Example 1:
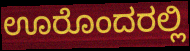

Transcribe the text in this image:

ಊರೊಂದರಲ್ಲಿ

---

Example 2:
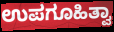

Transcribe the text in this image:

ಉಪಗೂಹಿತ್ವಾ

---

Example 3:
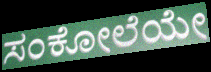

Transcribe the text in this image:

ಸಂಕೋಲೆಯೇ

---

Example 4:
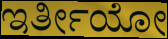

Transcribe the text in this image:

ಇರ್ತೀಯೋ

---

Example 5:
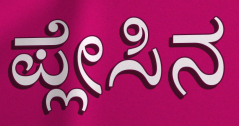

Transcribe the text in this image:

ಪ್ಲೇಸಿನ